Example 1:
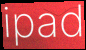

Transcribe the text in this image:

ipad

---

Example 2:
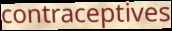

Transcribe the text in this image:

contraceptives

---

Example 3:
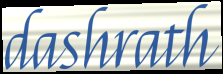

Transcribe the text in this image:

dashrath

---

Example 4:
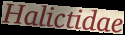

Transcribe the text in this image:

Halictidae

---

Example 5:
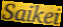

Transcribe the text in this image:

Saikei